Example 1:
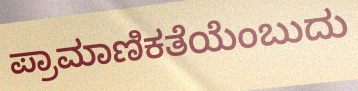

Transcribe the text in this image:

ಪ್ರಾಮಾಣಿಕತೆಯೆಂಬುದು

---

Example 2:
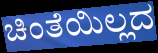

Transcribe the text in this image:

ಚಿಂತೆಯಿಲ್ಲದ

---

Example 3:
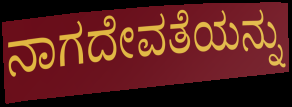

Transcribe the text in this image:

ನಾಗದೇವತೆಯನ್ನು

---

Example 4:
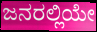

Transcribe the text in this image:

ಜನರಲ್ಲಿಯೇ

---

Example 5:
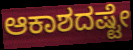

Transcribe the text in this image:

ಆಕಾಶದಷ್ಟೇ